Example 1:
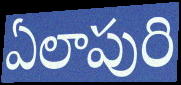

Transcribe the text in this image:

ఏలాపురి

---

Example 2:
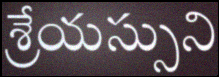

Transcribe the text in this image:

శ్రేయస్సుని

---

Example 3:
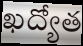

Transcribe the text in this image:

ఖద్యోత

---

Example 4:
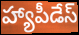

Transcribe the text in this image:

హ్యాపీడేస్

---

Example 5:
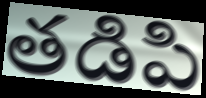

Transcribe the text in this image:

తడిపి